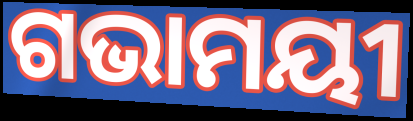
ଗଭାମୟୀ